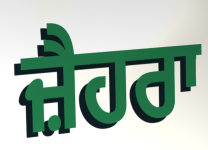
ਜ਼ੈਹਰਾ